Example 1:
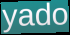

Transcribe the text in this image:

yado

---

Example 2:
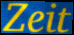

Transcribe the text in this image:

Zeit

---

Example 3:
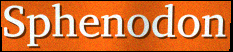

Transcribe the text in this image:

Sphenodon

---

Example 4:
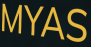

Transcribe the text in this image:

MYAS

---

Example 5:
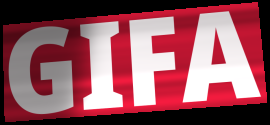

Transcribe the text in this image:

GIFA